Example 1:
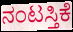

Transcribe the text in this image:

ನಂಟಸ್ತಿಕೆ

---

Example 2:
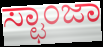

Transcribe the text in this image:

ಸ್ಟಾಂಜಾ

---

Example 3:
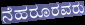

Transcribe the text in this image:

ನೆಹರೂರವರು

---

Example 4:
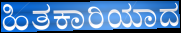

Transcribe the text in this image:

ಹಿತಕಾರಿಯಾದ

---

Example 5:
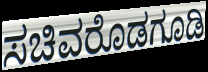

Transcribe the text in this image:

ಸಚಿವರೊಡಗೂಡಿ